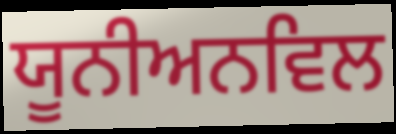
ਯੂਨੀਅਨਵਿਲ